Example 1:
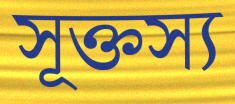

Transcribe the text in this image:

সূক্তস্য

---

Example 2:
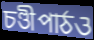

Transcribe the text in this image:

চণ্ডীপাঠও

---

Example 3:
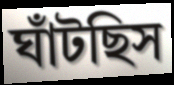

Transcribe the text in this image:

ঘাঁটছিস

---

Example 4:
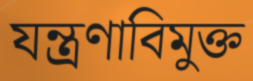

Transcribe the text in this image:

যন্ত্রণাবিমুক্ত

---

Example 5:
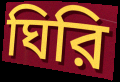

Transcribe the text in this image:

ঘিরি